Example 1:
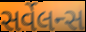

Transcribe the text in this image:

સર્વેલન્સ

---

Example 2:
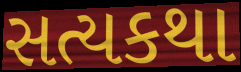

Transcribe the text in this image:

સત્યકથા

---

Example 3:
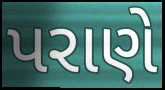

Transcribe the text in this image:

પરાણે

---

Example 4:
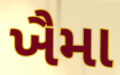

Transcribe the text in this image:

ખૈમા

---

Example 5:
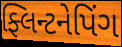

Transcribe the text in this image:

ફ્લિન્ટનેપિંગ